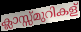
ക്ലാസ്സ്മുറികള്